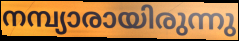
നമ്പ്യാരായിരുന്നു